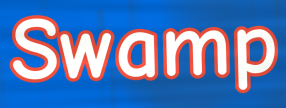
Swamp